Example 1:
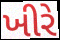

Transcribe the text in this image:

ખીરે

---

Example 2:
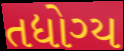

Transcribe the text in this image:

તદ્યોગ્ય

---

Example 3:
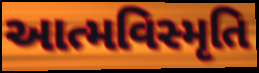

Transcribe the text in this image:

આત્મવિસ્મૃતિ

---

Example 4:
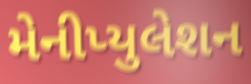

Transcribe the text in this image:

મેનીપ્યુલેશન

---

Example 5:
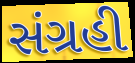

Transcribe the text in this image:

સંગ્રહી